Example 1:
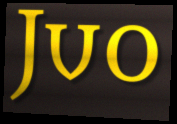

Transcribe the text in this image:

Juo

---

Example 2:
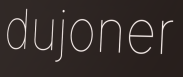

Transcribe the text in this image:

dujoner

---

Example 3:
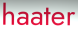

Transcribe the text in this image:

haater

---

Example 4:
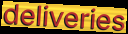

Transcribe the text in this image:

deliveries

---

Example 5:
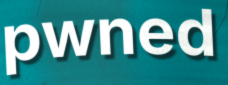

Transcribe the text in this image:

pwned